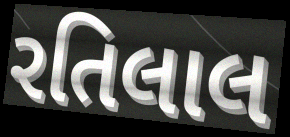
રતિલાલ